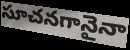
సూచనగానైనా